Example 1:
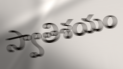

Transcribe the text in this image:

స్వాతిశయం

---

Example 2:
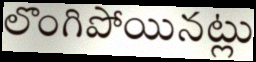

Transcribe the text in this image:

లొంగిపోయినట్లు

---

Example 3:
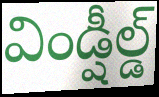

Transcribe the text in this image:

విండ్షీల్డ్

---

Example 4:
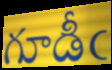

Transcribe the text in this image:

గూడీఁ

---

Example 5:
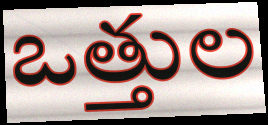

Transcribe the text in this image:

ఒత్తుల